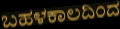
ಬಹಳಕಾಲದಿಂದ